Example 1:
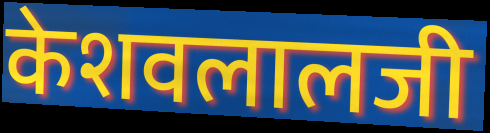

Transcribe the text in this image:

केशवलालजी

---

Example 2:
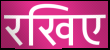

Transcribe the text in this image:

रखिए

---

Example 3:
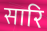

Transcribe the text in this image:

सारि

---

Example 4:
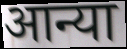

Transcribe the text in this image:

आन्या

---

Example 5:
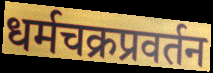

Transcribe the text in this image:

धर्मचक्रप्रवर्तन